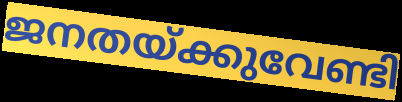
ജനതയ്ക്കുവേണ്ടി